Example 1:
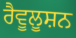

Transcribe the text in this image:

ਰੈਵੂਲੂਸ਼ਨ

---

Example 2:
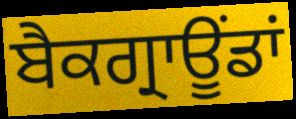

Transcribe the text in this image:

ਬੈਕਗ੍ਰਾਊਂਡਾਂ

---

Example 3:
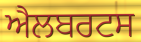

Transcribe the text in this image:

ਐਲਬਰਟਸ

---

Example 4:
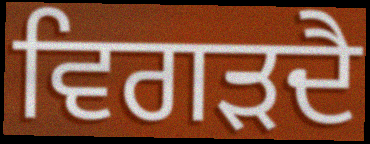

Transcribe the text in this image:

ਵਿਗੜਦੈ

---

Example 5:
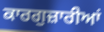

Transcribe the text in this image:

ਕਾਰਗੁਜ਼ਾਰੀਆਂ